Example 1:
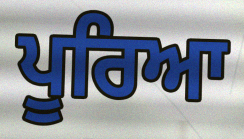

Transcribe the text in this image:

ਪੂਰਿਆ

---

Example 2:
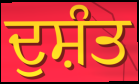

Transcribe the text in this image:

ਦੁਸ਼ੰਤ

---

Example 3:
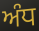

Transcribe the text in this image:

ਅੰਧ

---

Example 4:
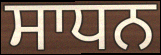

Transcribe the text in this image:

ਸਾਧਨ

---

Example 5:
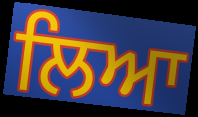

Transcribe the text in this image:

ਲਿਆ